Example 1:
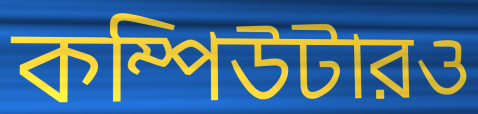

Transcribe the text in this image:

কম্পিউটারও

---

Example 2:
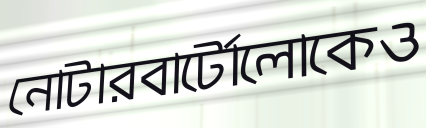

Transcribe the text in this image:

নোটারবার্টোলোকেও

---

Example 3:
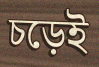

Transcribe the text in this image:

চড়েই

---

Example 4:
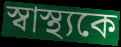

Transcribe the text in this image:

স্বাস্থ্যকে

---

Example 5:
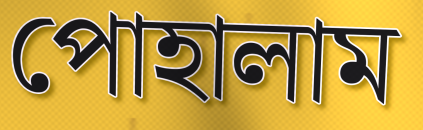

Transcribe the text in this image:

পোহালাম